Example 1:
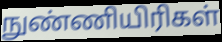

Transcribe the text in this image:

நுண்ணியிரிகள்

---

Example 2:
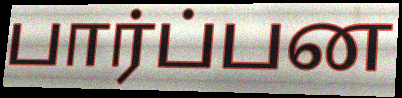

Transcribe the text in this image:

பார்ப்பன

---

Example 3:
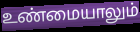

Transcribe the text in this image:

உண்மையாலும்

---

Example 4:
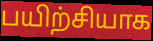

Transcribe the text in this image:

பயிற்சியாக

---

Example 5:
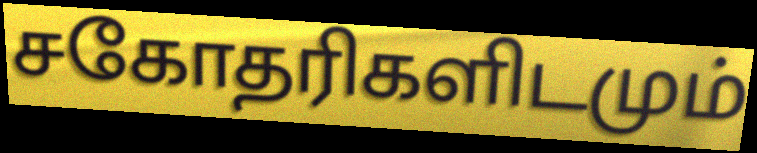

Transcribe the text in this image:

சகோதரிகளிடமும்